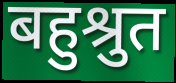
बहुश्रुत